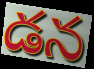
డన